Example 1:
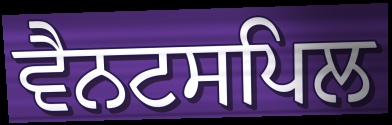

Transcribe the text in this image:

ਵੈਨਟਸਪਿਲ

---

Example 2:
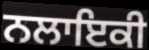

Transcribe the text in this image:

ਨਲਾਇਕੀ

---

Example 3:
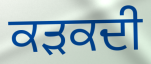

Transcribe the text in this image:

ਕੜਕਦੀ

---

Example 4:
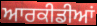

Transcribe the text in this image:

ਆਰਕੀਡੀਆਂ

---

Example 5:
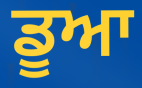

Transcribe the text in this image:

ਡੂਆ